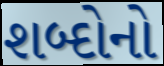
શબ્દોનો